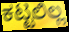
ಕಟ್ಟಲಿಲ್ಲ